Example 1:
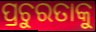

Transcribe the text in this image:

ପ୍ରଚୁରତାକୁ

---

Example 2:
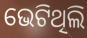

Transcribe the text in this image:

ଭେଟିଥିଲି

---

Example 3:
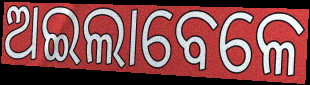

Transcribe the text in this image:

ଅଇଲାବେଳେ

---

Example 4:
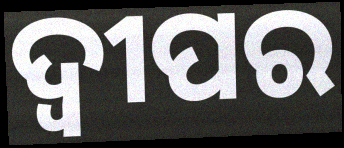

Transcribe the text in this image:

ଦ୍ଵୀପର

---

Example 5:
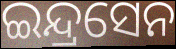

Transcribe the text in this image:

ଇନ୍ଦ୍ରସେନ